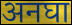
अनघा